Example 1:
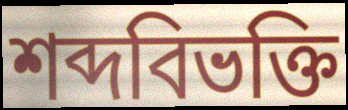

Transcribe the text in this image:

শব্দবিভক্তি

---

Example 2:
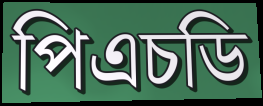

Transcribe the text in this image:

পিএচডি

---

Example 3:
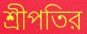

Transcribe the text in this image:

শ্রীপতির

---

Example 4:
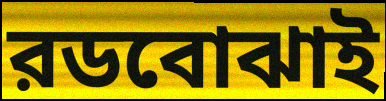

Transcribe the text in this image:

রডবোঝাই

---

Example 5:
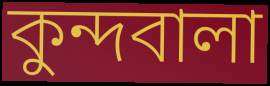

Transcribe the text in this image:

কুন্দবালা